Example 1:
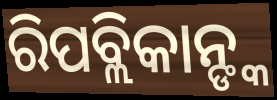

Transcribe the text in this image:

ରିପବ୍ଲିକାନ୍ଙ୍କ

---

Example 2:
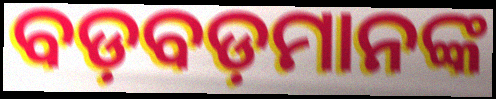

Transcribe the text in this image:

ବଡ଼ବଡ଼ମାନଙ୍କ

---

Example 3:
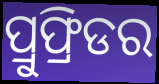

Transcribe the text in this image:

ପ୍ରୁଫ୍ରିଡର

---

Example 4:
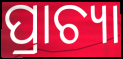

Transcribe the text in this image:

ପ୍ରାଚ୍ୟା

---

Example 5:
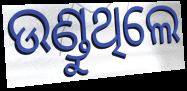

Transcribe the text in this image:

ଉଣ୍ଡୁଥିଲେ